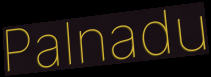
Palnadu